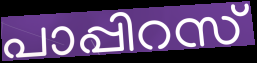
പാപ്പിറസ്